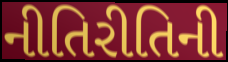
નીતિરીતિની